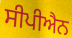
ਸੀਪੀਐਨ